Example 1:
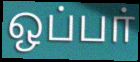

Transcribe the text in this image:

ஒப்பர்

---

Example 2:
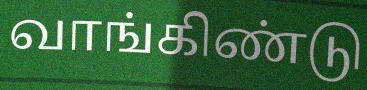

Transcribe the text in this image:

வாங்கிண்டு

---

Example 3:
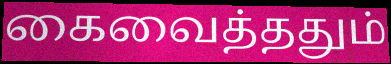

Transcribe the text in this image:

கைவைத்ததும்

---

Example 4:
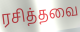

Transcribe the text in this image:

ரசித்தவை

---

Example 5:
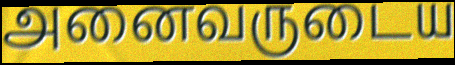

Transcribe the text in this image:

அனைவருடைய